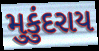
મુકુંદરાય